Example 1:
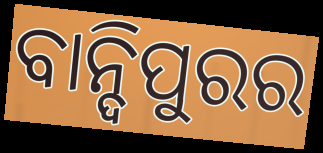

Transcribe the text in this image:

ବାନ୍ଦିପୁରର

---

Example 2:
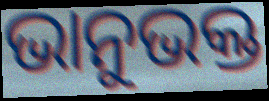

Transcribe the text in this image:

ଭାନୁଭକ୍ତ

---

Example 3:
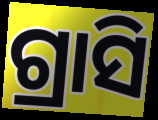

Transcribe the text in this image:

ଗ୍ରାସି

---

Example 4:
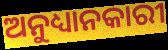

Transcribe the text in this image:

ଅନୁଧ୍ୟାନକାରୀ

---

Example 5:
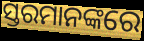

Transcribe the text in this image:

ସ୍ତରମାନଙ୍କରେ